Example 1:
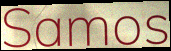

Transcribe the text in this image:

Samos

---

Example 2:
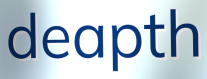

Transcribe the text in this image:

deapth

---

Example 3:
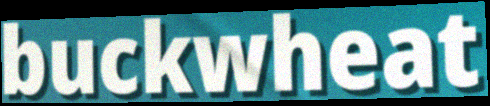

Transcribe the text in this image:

buckwheat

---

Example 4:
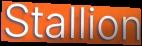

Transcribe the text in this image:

Stallion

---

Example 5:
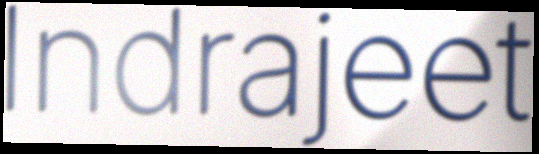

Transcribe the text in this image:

Indrajeet